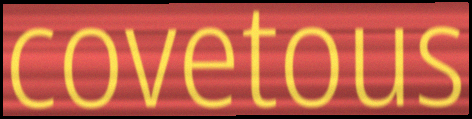
covetous